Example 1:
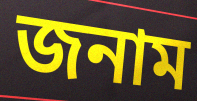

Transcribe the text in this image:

জনাম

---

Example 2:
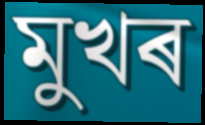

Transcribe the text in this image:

মুখৰ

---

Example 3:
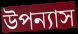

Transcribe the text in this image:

উপন্যাস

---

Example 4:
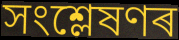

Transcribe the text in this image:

সংশ্লেষণৰ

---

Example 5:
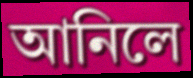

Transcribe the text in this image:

আনিলে